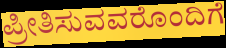
ಪ್ರೀತಿಸುವವರೊಂದಿಗೆ